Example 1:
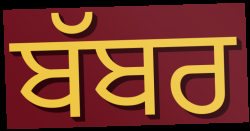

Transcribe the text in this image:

ਬੱਬਰ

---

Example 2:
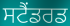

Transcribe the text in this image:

ਸਟੈਂਡਰਡ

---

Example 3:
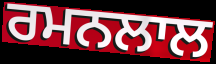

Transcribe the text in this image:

ਰਮਨਲਾਲ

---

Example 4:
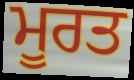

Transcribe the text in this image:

ਮੂਰਤ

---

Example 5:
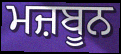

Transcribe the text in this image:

ਮਜ਼ਬੂਨ